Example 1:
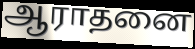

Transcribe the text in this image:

ஆராதனை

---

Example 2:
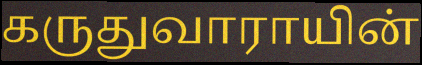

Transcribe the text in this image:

கருதுவாராயின்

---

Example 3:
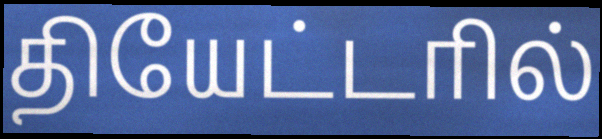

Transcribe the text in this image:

தியேட்டரில்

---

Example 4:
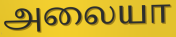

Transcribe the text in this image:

அலையா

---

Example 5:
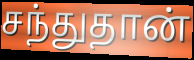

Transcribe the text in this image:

சந்துதான்